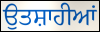
ਉਤਸ਼ਾਹੀਆਂ